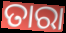
ତାରା